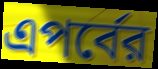
এপর্বের